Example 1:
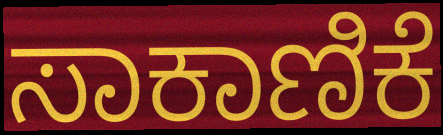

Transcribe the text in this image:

ಸಾಕಾಣಿಕೆ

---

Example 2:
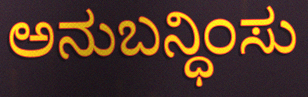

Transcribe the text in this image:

ಅನುಬನ್ಧಿಂಸು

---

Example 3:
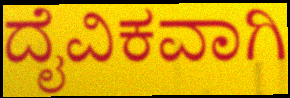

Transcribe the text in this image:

ದೈವಿಕವಾಗಿ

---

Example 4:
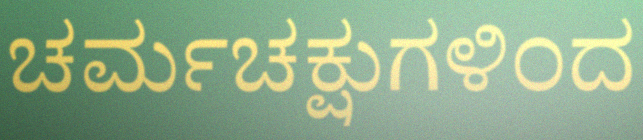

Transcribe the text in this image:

ಚರ್ಮಚಕ್ಷುಗಳಿಂದ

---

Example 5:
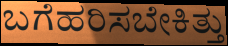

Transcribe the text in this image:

ಬಗೆಹರಿಸಬೇಕಿತ್ತು